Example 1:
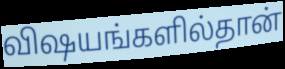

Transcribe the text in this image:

விஷயங்களில்தான்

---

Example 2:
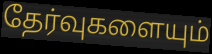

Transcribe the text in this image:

தேர்வுகளையும்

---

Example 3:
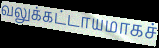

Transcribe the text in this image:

வலுக்கட்டாயமாகச்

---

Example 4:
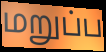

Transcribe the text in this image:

மறுப்ப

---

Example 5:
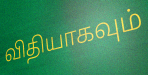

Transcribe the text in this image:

விதியாகவும்